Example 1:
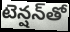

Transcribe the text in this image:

టెన్షన్‌తో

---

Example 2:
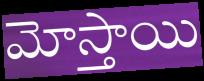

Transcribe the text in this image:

మోస్తాయి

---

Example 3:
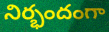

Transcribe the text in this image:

నిర్భందంగా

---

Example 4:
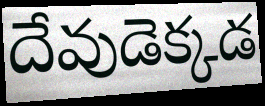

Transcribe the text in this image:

దేవుడెక్కడ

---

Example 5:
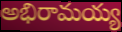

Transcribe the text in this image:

అభిరామయ్య